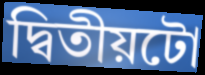
দ্বিতীয়টো